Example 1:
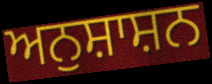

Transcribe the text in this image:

ਅਨੁਸ਼ਾਸ਼ਨ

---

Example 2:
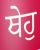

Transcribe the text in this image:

ਥੇਹੁ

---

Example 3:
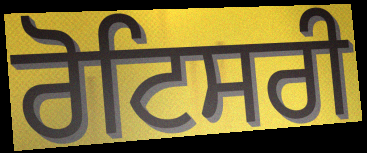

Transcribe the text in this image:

ਰੋਟਿਸਰੀ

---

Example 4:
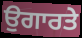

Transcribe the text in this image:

ਉਗਾਰਤੇ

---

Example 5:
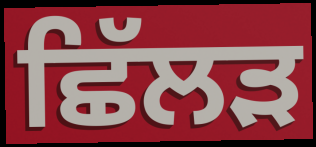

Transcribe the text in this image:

ਛਿੱਲੜ